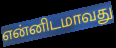
என்னிடமாவது